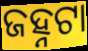
ଜହ୍ନଟା